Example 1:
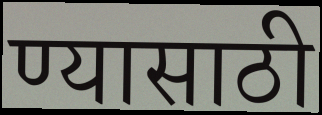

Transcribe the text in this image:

ण्यासाठी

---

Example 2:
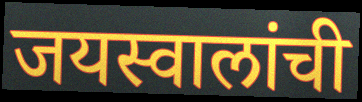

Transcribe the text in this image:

जयस्वालांची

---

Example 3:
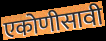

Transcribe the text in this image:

एकोणीसावी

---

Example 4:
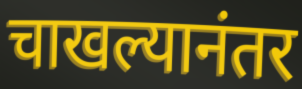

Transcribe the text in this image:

चाखल्यानंतर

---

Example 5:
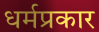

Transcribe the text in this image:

धर्मप्रकार